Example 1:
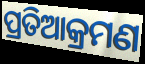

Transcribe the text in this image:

ପ୍ରତିଆକ୍ରମଣ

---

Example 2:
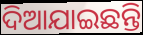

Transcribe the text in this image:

ଦିଆଯାଇଛନ୍ତି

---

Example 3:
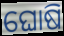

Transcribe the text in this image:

ଘୋଷି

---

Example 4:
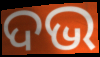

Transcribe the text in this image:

ଦଭ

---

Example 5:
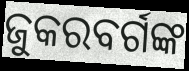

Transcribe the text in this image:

ଜୁକରବର୍ଗଙ୍କ